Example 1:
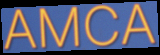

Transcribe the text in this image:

AMCA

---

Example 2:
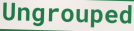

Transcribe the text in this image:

Ungrouped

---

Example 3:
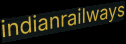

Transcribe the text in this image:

indianrailways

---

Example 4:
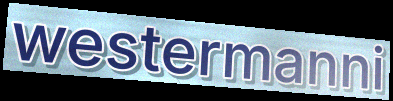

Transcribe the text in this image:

westermanni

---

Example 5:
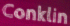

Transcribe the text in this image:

Conklin